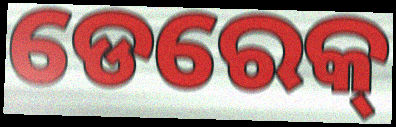
ଡେରେକ୍